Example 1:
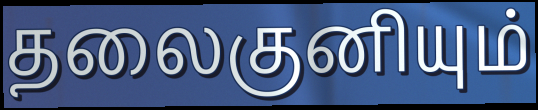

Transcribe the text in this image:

தலைகுனியும்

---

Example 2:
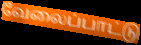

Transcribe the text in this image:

வேலைப்பாட்டு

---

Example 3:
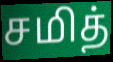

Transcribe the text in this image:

சமித்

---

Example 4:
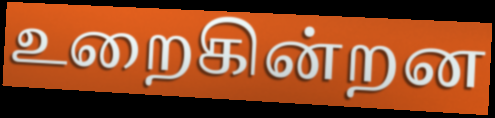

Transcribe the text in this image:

உறைகின்றன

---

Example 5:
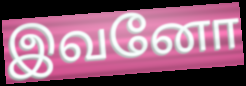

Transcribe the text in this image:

இவனோ